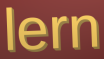
lern